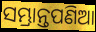
ସମ୍ଭ୍ରାନ୍ତପଣିଆ